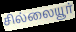
சில்லையூர்